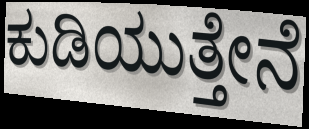
ಕುಡಿಯುತ್ತೇನೆ